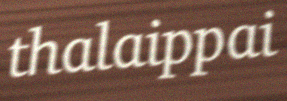
thalaippai